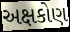
અક્ષકોણ